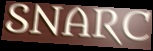
SNARC